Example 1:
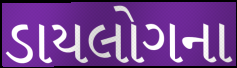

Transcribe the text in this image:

ડાયલોગના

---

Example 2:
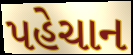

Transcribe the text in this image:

પહેચાન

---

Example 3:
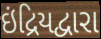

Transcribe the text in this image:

ઇંદ્રિયદ્વારા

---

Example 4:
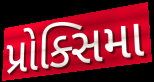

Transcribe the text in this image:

પ્રોક્સિમા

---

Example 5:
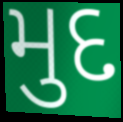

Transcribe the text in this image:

મુદ